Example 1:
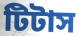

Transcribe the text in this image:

টিটাস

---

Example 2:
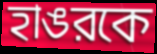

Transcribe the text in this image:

হাঙরকে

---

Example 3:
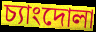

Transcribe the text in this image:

চ্যাংদোলা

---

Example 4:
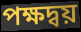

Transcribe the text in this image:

পক্ষদ্বয়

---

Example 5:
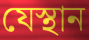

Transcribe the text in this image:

যেস্থান